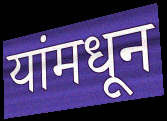
यांमधून